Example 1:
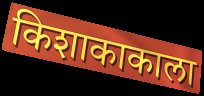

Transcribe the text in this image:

किशाकाकाला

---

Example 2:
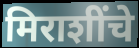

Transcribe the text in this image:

मिराशींचे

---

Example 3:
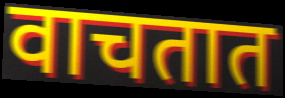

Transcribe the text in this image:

वाचतात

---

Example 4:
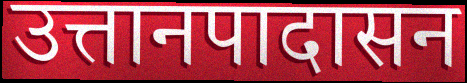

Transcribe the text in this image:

उत्तानपादासन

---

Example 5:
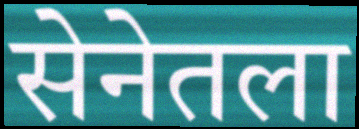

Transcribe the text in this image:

सेनेतला